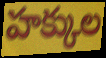
హక్కుల